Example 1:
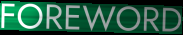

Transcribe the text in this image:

FOREWORD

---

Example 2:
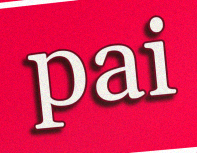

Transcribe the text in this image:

pai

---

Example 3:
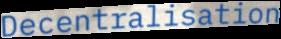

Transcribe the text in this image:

Decentralisation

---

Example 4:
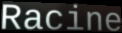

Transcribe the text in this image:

Racine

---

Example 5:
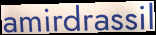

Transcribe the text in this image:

amirdrassil